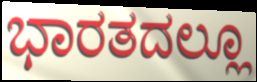
ಭಾರತದಲ್ಲೂ